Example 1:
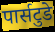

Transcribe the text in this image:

पार्सटुडे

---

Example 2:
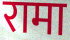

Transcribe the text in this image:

रामा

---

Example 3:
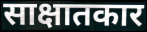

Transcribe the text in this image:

साक्षातकार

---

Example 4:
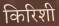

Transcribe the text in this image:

किरिशी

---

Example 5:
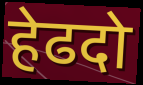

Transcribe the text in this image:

हेढदो